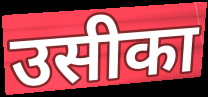
उसीका